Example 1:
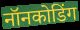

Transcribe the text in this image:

नॉनकोडिंग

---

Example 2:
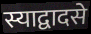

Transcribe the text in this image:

स्याद्वादसे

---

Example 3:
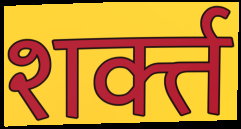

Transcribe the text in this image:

शर्क्त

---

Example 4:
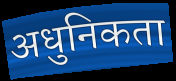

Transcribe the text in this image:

अधुनिकता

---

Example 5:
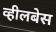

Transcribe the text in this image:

व्हीलबेस